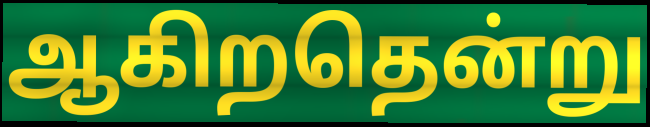
ஆகிறதென்று